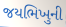
જયભિખુની